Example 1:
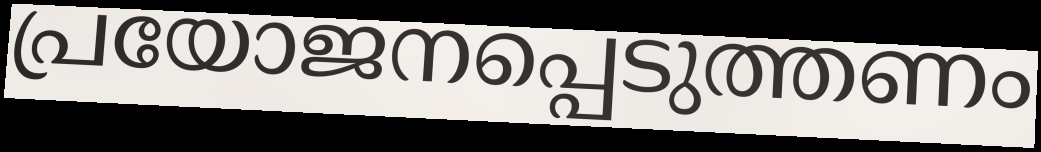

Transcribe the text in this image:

പ്രയോജനപ്പെടുത്തണം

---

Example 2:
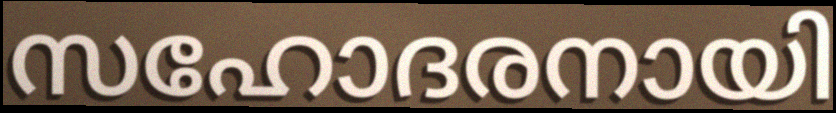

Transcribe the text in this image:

സഹോദരനായി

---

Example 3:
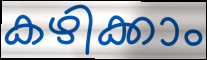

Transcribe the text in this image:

കഴിക്കാം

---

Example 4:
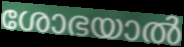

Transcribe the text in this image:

ശോഭയാൽ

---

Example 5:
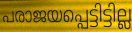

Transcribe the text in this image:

പരാജയപ്പെട്ടിട്ടില്ല